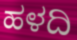
ಹಳದಿ